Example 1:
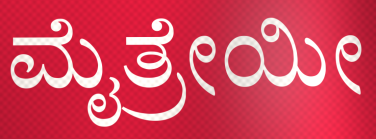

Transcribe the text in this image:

ಮೈತ್ರೇಯೀ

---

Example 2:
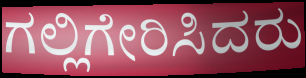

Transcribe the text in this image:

ಗಲ್ಲಿಗೇರಿಸಿದರು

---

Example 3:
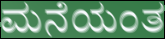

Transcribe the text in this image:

ಮನೆಯಂತ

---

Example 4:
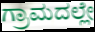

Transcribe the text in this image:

ಗ್ರಾಮದಲ್ಲೇ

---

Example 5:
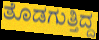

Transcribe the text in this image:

ತೊಡಗುತ್ತಿದ್ದ